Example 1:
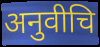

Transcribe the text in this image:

अनुवीचि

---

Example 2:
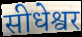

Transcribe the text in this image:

सीधेश्वर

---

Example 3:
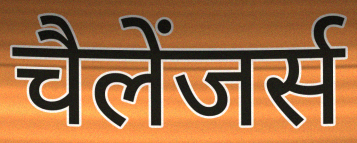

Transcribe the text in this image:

चैलेंजर्स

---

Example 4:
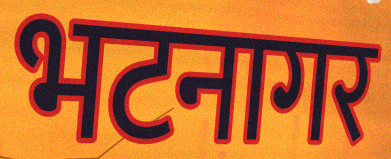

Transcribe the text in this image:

भटनागर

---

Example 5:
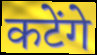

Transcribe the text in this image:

कटेंगे